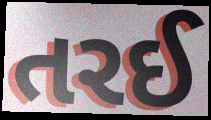
તરઈ